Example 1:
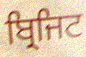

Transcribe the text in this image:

ਬ੍ਰਿਜਿਟ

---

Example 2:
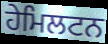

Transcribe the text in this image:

ਹੇਮਿਲਟਨ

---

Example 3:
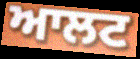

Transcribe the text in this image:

ਆਲਟ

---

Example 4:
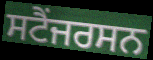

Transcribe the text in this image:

ਸਟੈਂਜਰਸਨ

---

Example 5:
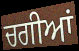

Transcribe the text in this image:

ਚਗੀਆਂ